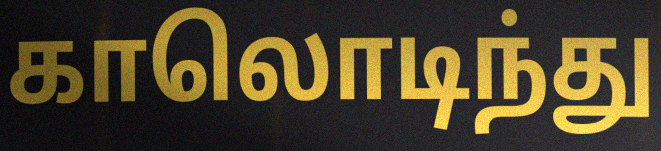
காலொடிந்து